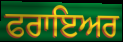
ਫਰਾਇਅਰ